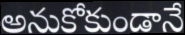
అనుకోకుండానే